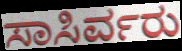
ಸಾಸಿರ್ವರು